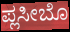
ಪ್ಲಸೀಬೊ